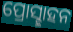
ପ୍ରୋସ୍ଛାହନ